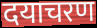
दयाचरण